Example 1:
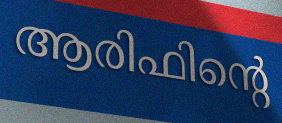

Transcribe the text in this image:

ആരിഫിന്റെ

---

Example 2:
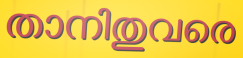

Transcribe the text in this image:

താനിതുവരെ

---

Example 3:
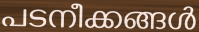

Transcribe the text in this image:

പടനീക്കങ്ങൾ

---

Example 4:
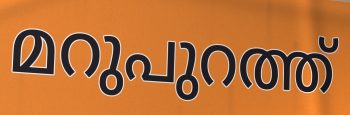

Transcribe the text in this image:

മറുപുറത്ത്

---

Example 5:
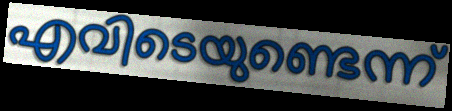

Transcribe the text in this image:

എവിടെയുണ്ടെന്ന്